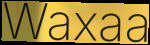
Waxaa